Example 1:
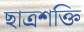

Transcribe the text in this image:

ছাত্ৰশক্তি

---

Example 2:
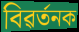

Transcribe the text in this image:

বিৱৰ্তনক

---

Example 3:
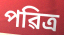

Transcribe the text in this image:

পৱিত্ৰ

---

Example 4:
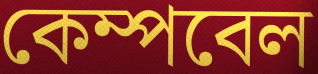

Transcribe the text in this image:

কেম্পবেল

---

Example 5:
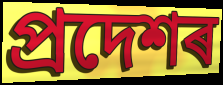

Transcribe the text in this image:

প্ৰদেশৰ